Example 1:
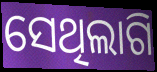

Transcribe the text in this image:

ସେଥିଲାଗି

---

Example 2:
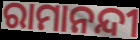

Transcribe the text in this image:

ରାମାନନ୍ଦୀ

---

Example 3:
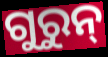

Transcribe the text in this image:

ଗୁରୁନ୍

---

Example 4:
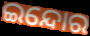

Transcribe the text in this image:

ଇନ୍ଦୋର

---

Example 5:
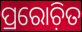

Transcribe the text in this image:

ପ୍ରରୋଚ଼ିତ